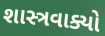
શાસ્ત્રવાક્યો